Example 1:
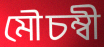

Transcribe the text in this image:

মৌচম্বী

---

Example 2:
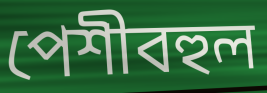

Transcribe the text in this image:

পেশীবহুল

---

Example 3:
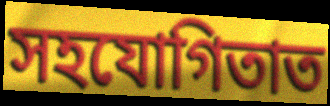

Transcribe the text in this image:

সহযোগিতাত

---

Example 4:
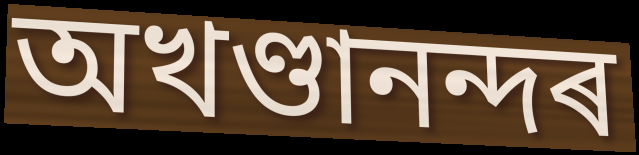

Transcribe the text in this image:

অখণ্ডানন্দৰ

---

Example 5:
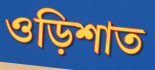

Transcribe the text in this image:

ওড়িশাত